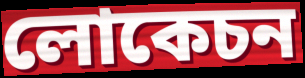
লোকেচন